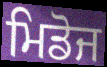
ਮਿਡੋਜ